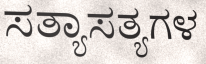
ಸತ್ಯಾಸತ್ಯಗಳ